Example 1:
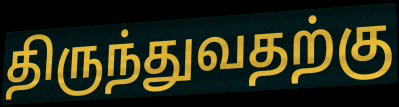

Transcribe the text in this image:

திருந்துவதற்கு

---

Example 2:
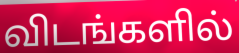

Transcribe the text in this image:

விடங்களில்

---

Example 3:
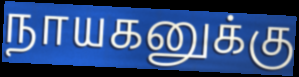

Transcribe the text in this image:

நாயகனுக்கு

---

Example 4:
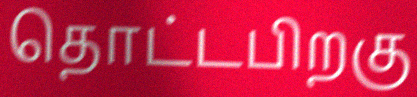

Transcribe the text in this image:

தொட்டபிறகு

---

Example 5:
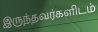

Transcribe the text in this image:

இருந்தவர்களிடம்